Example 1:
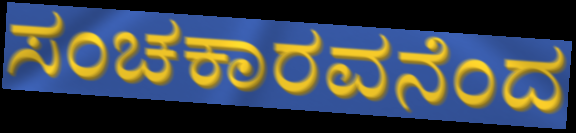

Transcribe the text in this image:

ಸಂಚಕಾರವನೆಂದ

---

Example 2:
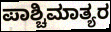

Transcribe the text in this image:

ಪಾಶ್ಚಿಮಾತ್ಯರ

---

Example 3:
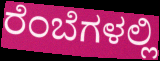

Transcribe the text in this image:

ರೆಂಬೆಗಳಲ್ಲಿ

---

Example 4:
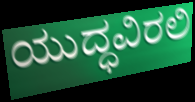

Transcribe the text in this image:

ಯುದ್ಧವಿರಲಿ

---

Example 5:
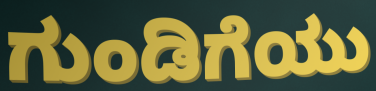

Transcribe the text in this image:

ಗುಂಡಿಗೆಯು